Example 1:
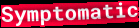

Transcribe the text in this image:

Symptomatic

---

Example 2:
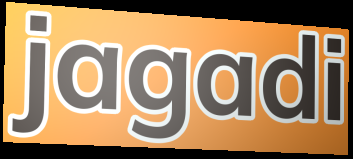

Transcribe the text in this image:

jagadi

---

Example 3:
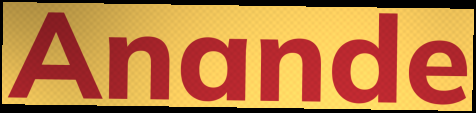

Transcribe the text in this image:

Anande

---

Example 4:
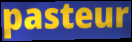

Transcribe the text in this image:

pasteur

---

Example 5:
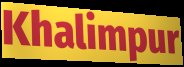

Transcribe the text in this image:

Khalimpur